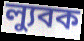
ল্যুবক